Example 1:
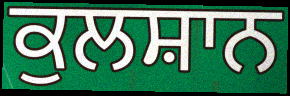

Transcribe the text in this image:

ਕੁਲਸ਼ਾਨ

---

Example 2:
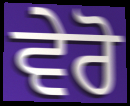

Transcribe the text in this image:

ਵੇਰੋ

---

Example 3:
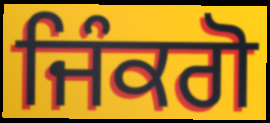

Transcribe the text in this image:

ਜਿੰਕਗੋ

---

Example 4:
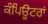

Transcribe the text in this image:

ਕੰਪਿਊਟਰਾਂ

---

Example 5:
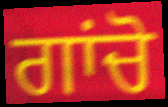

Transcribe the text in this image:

ਗਾਂਚੋ